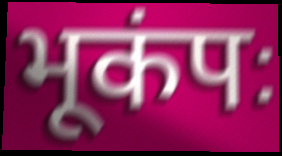
भूकंपः